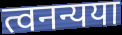
त्वनन्यया